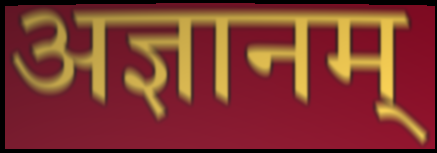
अज्ञानम्